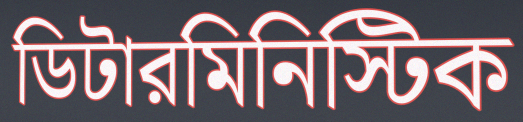
ডিটারমিনিস্টিক